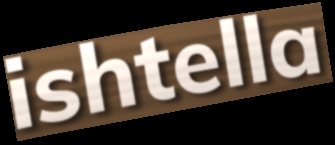
ishtella